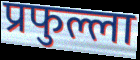
प्रफुल्ला